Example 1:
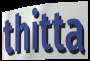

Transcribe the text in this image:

thitta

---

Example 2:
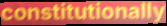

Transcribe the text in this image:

constitutionally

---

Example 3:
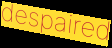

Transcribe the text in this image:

despaired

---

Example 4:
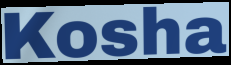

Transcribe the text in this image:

Kosha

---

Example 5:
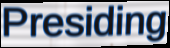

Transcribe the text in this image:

Presiding